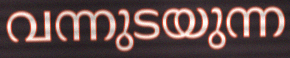
വന്നുടയുന്ന